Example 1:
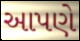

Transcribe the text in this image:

આપણે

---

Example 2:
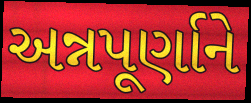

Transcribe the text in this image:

અન્નપૂર્ણાને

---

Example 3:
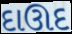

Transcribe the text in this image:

દાઊદ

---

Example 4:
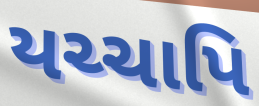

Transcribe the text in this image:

યચ્ચાપિ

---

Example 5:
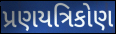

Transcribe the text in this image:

પ્રણયત્રિકોણ